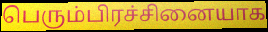
பெரும்பிரச்சினையாக